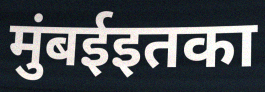
मुंबईइतका